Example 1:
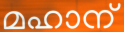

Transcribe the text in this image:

മഹാന്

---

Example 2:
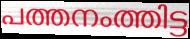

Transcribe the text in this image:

പത്തനംത്തിട്ട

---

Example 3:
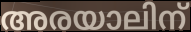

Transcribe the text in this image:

അരയാലിന്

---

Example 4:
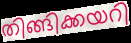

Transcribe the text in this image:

തിങ്ങിക്കയറി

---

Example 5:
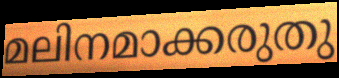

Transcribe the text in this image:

മലിനമാക്കരുതു